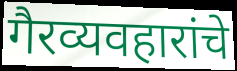
गैरव्यवहारांचे